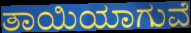
ತಾಯಿಯಾಗುವೆ